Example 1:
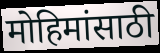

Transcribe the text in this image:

मोहिमांसाठी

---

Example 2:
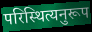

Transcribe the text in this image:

परिस्थित्यनुरूप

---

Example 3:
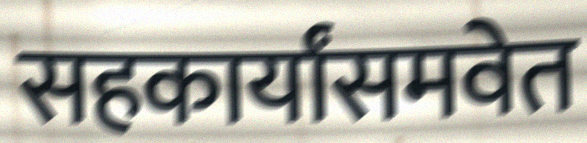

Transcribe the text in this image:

सहकार्यांसमवेत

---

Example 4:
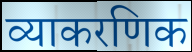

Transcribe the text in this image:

व्याकरणिक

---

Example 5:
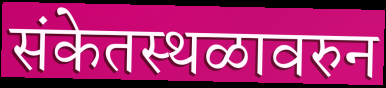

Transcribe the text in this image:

संकेतस्थळावरुन